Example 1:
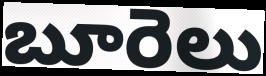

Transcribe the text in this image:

బూరెలు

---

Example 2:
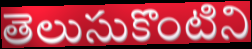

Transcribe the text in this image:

తెలుసుకొంటిని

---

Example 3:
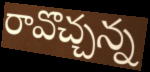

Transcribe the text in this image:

రావొచ్చన్న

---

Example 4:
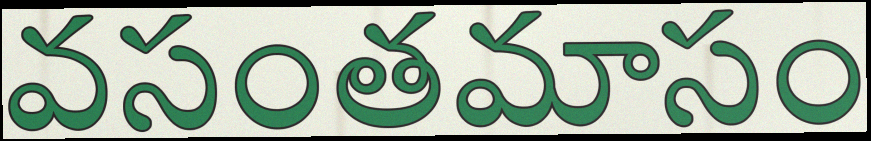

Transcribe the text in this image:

వసంతమాసం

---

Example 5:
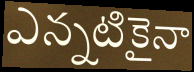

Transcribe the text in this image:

ఎన్నటికైనా